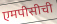
एमपीसीची